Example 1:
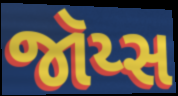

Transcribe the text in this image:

જૉય્સ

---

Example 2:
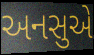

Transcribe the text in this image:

અનસુએ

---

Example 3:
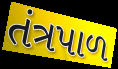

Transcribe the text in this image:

તંત્રપાળ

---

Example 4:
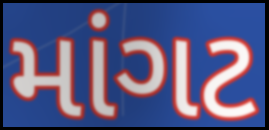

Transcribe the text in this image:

માંગટ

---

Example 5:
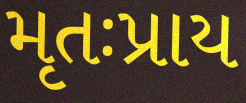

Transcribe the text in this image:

મૃતઃપ્રાય